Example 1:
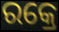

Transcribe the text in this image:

ରକ୍ରେ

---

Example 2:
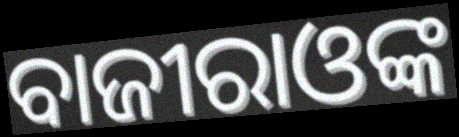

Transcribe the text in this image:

ବାଜୀରାଓଙ୍କ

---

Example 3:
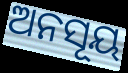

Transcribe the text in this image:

ଅନସୂୟ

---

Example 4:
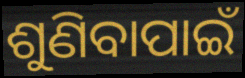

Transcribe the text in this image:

ଶୁଣିବାପାଇଁ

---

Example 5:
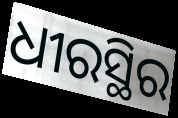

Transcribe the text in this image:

ଧୀରସ୍ଥିର